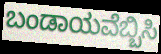
ಬಂಡಾಯವೆಬ್ಬಿಸಿ